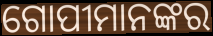
ଗୋପୀମାନଙ୍କର